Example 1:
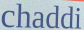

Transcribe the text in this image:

chaddi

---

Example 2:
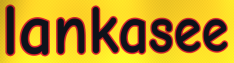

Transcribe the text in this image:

lankasee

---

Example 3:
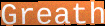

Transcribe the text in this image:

Greath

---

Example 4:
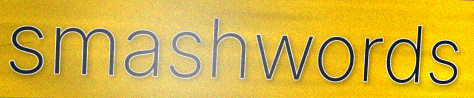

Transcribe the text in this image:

smashwords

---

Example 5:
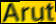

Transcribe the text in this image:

Arut